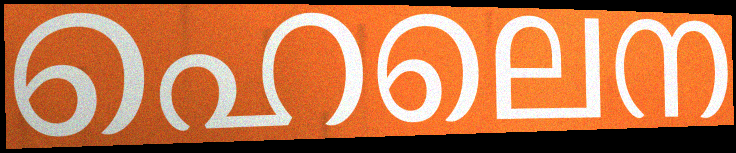
ഹെലെന